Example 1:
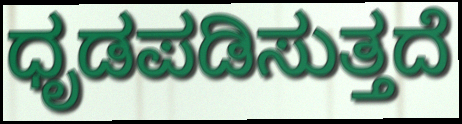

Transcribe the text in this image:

ಧೃಡಪಡಿಸುತ್ತದೆ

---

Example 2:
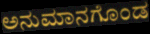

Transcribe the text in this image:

ಅನುಮಾನಗೊಂಡ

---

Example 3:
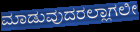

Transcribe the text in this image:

ಮಾಡುವುದರಲ್ಲಾಗಲೀ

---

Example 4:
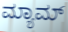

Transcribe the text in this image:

ಮ್ಯಾಮ್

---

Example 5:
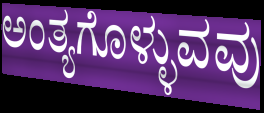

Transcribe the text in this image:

ಅಂತ್ಯಗೊಳ್ಳುವವು